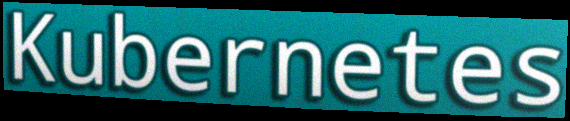
Kubernetes